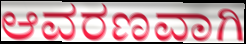
ಆವರಣವಾಗಿ